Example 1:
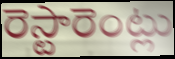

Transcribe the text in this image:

రెస్టారెంట్లు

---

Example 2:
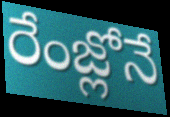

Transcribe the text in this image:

రేంజ్లోనే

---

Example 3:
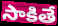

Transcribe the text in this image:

సాకితే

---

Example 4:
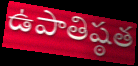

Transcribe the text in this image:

ఉపాతిష్ఠత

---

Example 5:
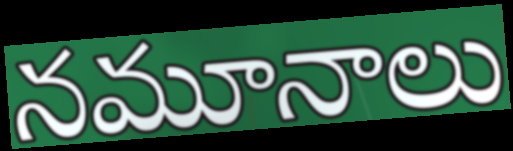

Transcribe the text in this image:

నమూనాలు